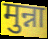
मुन्ना